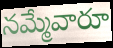
నమ్మేవారూ